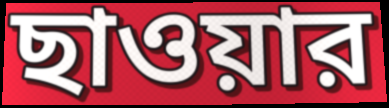
ছাওয়ার